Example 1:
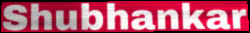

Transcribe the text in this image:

Shubhankar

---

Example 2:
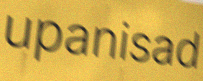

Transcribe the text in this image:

upanisad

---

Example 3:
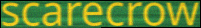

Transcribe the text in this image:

scarecrow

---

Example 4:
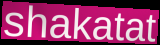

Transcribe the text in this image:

shakatat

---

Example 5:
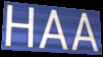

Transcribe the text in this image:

HAA